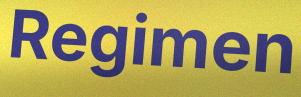
Regimen